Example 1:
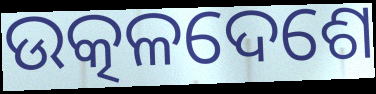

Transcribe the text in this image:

ଉତ୍କଳଦେଶେ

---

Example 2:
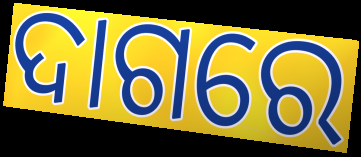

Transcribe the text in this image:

ଦାଗରେ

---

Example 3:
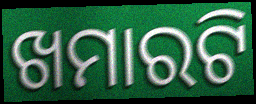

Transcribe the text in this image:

ଖମାରଟି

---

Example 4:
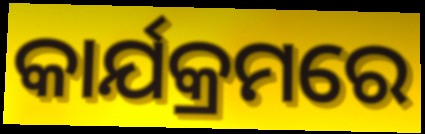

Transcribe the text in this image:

କାର୍ଯକ୍ରମରେ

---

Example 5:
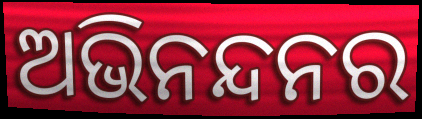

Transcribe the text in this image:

ଅଭିନନ୍ଦନର